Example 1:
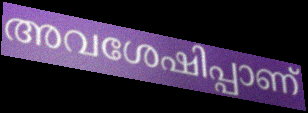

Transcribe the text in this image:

അവശേഷിപ്പാണ്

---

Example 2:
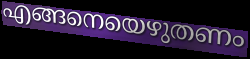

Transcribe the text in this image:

എങ്ങനെയെഴുതണം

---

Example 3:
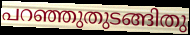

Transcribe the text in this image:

പറഞ്ഞുതുടങ്ങിതു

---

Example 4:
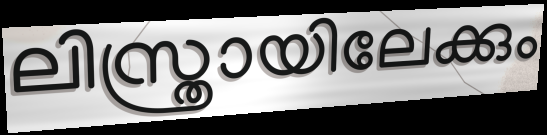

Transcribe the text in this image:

ലിസ്ത്രായിലേക്കും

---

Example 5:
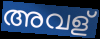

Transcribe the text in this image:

അവള്